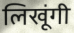
लिखूंगी